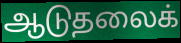
ஆடுதலைக்